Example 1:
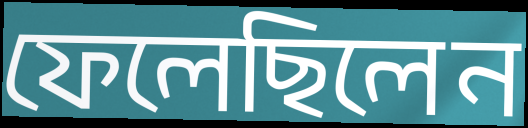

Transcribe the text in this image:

ফেলেছিলেন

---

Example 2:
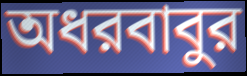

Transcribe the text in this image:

অধরবাবুর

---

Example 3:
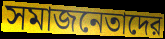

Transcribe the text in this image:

সমাজনেতাদের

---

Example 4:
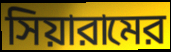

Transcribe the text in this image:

সিয়ারামের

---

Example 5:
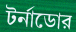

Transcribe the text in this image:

টর্নাডোর